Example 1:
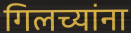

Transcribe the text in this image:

गिलच्यांना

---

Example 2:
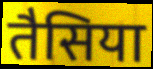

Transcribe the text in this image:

तैसिया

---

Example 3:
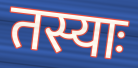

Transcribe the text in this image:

तस्याः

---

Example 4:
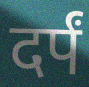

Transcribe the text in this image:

दर्पं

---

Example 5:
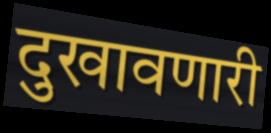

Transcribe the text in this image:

दुखावणारी